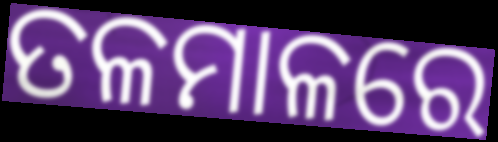
ତଳମାଳରେ